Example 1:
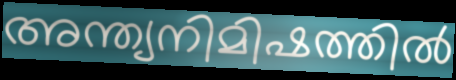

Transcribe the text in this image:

അന്ത്യനിമിഷത്തിൽ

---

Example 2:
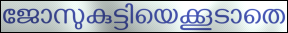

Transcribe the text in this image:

ജോസുകുട്ടിയെക്കൂടാതെ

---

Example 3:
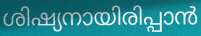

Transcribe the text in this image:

ശിഷ്യനായിരിപ്പാൻ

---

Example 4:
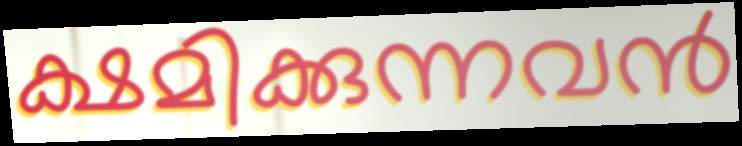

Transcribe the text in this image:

ക്ഷമിക്കുന്നവൻ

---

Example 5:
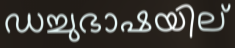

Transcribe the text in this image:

ഡച്ചുഭാഷയില്